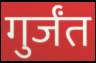
गुर्जंत